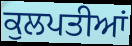
ਕੁਲਪਤੀਆਂ